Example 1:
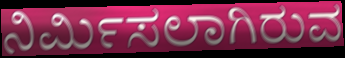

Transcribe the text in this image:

ನಿರ್ಮಿಸಲಾಗಿರುವ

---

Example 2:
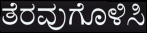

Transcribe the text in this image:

ತೆರವುಗೊಳಿಸಿ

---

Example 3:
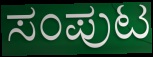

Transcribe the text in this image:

ಸಂಪುಟ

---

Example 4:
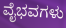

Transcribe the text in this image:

ವೈಭವಗಳು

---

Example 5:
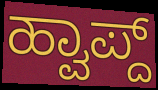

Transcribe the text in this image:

ಹ್ವಾಪ್ದ್